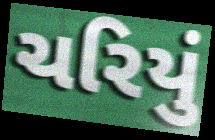
ચરિયું